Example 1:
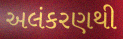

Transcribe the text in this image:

અલંકરણથી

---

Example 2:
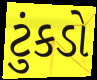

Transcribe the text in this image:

ટુંકડો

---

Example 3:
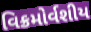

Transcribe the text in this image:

વિક્રમોર્વશીય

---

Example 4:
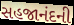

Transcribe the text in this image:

સહજાનંદની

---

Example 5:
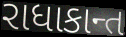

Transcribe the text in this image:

રાધાકાન્ત